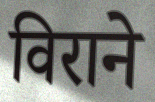
विराने